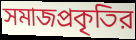
সমাজপ্রকৃতির